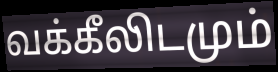
வக்கீலிடமும்